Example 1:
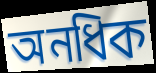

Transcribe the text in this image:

অনধিক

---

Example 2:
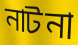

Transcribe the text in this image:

নাটনা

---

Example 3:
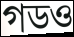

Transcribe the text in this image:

গডও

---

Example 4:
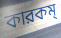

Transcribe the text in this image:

কারকম্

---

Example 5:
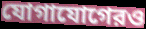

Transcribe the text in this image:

যোগাযোগেরও